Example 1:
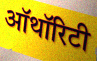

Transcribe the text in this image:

ऑथॉरिटी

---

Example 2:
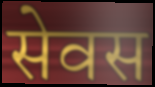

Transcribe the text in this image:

सेवस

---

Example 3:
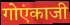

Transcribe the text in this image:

गोएंकाजी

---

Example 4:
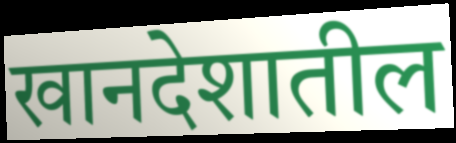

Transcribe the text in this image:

खानदेशातील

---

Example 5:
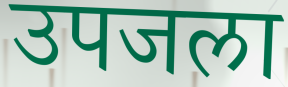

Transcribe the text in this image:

उपजला